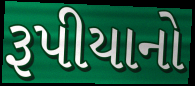
રૂપીયાનો